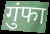
गुंफा